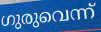
ഗുരുവെന്ന്